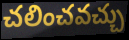
చలించవచ్చు